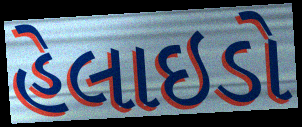
હેલાઇડો